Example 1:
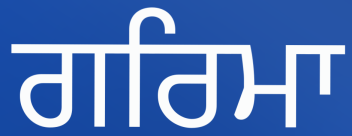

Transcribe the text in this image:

ਗਰਿਮਾ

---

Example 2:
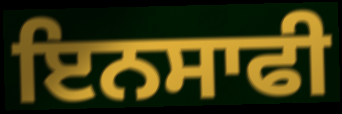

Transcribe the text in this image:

ਇਨਸਾਫੀ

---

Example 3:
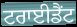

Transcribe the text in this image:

ਟਰਾਈਡੈਂਟ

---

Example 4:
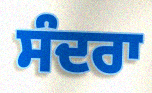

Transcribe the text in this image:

ਸੰਦਰਾ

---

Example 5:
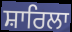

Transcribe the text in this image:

ਸ਼ਾਰਿਲਾ